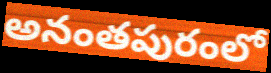
అనంతపురంలో